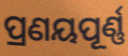
ପ୍ରଣୟପୂର୍ଣ୍ଣ